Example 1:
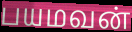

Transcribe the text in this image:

பயமவன்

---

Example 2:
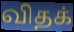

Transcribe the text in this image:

விதக்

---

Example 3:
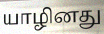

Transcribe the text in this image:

யாழினது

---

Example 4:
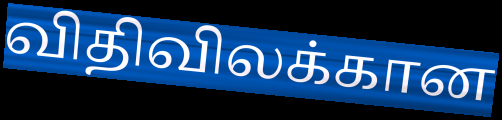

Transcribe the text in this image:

விதிவிலக்கான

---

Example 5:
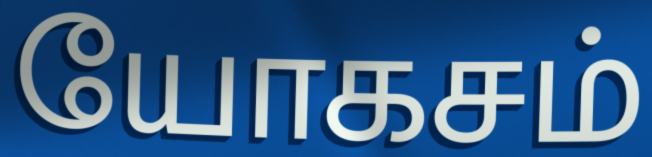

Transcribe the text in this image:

யோகசம்